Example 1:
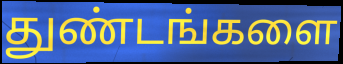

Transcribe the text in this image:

துண்டங்களை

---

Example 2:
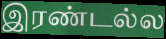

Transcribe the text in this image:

இரண்டல்ல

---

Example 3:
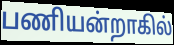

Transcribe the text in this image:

பணியன்றாகில்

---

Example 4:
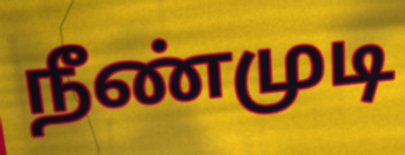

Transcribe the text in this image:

நீண்முடி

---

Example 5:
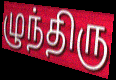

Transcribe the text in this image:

ழுந்திரு